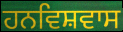
ਹਨਵਿਸ਼ਵਾਸ